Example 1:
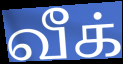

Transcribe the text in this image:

வீக்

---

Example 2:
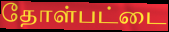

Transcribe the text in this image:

தோள்பட்டை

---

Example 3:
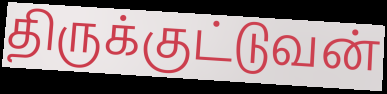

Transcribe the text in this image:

திருக்குட்டுவன்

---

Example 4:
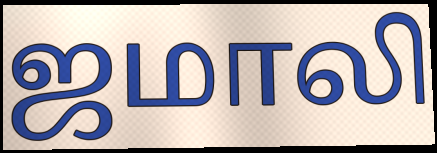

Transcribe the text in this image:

ஜமாலி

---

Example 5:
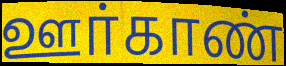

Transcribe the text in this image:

ஊர்காண்